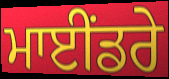
ਮਾਈਂਡਰੇ